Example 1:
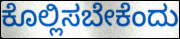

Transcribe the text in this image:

ಕೊಲ್ಲಿಸಬೇಕೆಂದು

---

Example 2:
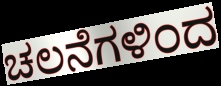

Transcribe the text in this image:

ಚಲನೆಗಳಿಂದ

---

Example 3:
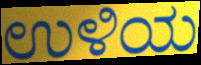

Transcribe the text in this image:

ಉಳಿಯ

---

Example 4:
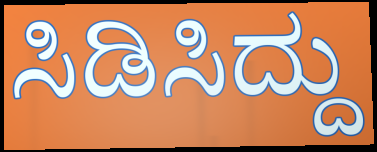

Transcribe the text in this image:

ಸಿಡಿಸಿದ್ದು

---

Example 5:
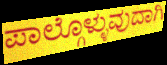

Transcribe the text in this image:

ಪಾಲ್ಗೊಳ್ಳುವುದಾಗಿ